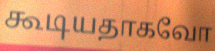
கூடியதாகவோ